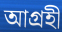
আগ্রহী